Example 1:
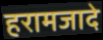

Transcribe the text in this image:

हरामजादे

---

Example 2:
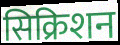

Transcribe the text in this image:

सिक्रिशन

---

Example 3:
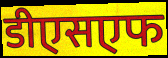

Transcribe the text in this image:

डीएसएफ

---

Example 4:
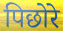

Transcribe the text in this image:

पिछोरे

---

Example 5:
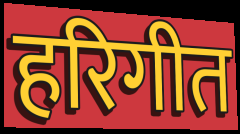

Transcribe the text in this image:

हरिगीत